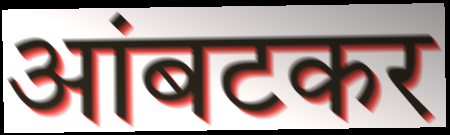
आंबटकर